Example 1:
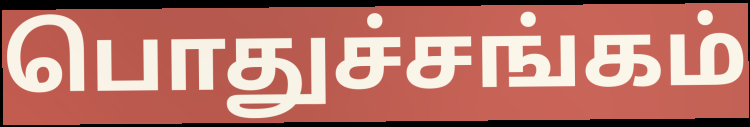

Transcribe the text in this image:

பொதுச்சங்கம்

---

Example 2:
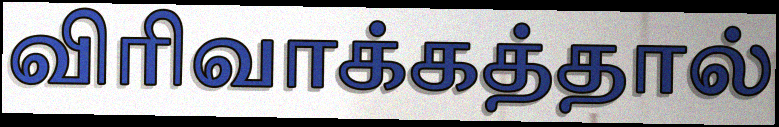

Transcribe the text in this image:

விரிவாக்கத்தால்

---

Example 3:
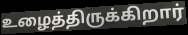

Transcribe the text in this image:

உழைத்திருக்கிறார்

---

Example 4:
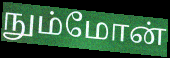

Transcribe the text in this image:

நும்மோன்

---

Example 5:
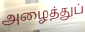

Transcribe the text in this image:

அழைத்துப்